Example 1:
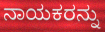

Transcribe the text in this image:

ನಾಯಕರನ್ನು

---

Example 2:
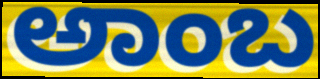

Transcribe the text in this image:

ಅಾಂಬ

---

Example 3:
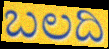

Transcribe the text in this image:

ಬಲದಿ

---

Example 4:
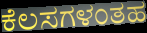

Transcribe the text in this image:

ಕೆಲಸಗಳಂತಹ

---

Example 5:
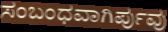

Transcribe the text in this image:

ಸಂಬಂಧವಾಗಿರ್ಪುವು